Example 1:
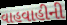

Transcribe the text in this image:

વાહવાહીની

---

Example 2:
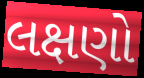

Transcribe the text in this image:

લક્ષણો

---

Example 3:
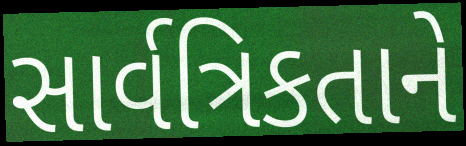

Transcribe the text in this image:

સાર્વત્રિકતાને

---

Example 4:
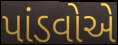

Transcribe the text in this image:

પાંડવોએ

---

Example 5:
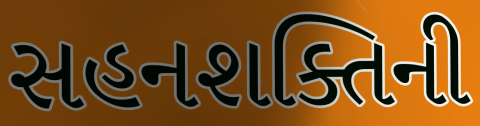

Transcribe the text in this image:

સહનશક્તિની